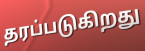
தரப்படுகிறது